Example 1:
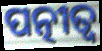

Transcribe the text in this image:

ପତ୍ନୀତ୍ୱ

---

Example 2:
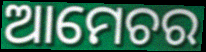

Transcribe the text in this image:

ଆମେଚର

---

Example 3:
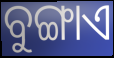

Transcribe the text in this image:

ବୁଙ୍ଗାଏ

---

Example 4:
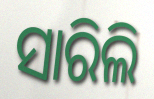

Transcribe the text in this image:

ସାରିଲି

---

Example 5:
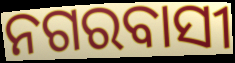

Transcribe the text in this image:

ନଗରବାସୀ